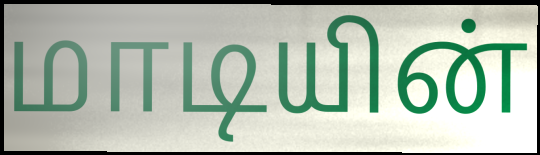
மாடியின்